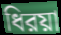
ধিরয়া